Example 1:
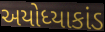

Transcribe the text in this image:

અયોધ્યાકાંડ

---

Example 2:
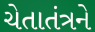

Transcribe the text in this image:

ચેતાતંત્રને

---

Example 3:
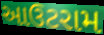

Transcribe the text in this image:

આઉટરામ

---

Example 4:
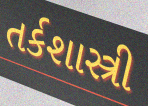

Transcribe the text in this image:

તર્કશાસ્ત્રી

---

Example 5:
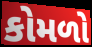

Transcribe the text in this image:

કોમળો